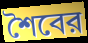
শৈবের